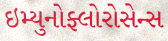
ઇમ્યુનોફ્લોરોસેન્સ